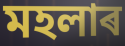
মহলাৰ